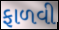
ફાળવી